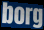
borg